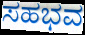
ಸಹಭವ